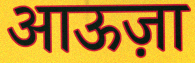
आऊज़ा